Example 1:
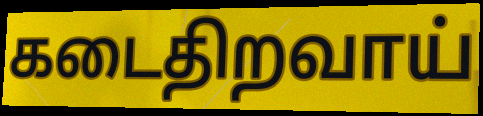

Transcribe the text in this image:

கடைதிறவாய்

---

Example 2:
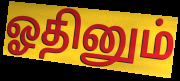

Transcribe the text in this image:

ஓதினும்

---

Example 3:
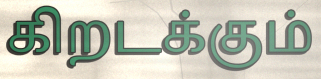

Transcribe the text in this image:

கிறடக்கும்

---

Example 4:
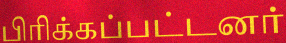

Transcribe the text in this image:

பிரிக்கப்பட்டனர்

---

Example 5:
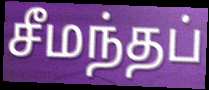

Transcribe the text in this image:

சீமந்தப்